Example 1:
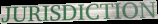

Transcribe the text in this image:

JURISDICTION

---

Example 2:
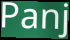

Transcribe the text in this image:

Panj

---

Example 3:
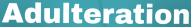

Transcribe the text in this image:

Adulteration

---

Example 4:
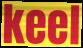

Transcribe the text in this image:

keel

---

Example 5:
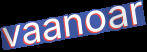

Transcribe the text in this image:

vaanoar